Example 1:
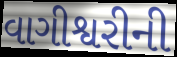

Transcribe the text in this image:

વાગીશ્વરીની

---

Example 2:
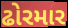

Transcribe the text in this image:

ઢોરમાર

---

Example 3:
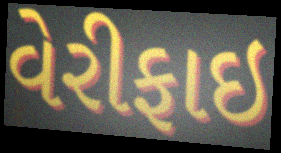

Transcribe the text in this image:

વેરીફાઇ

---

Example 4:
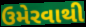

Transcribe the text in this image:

ઉમેરવાથી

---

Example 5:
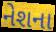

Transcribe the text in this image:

નેશના